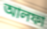
আলফা